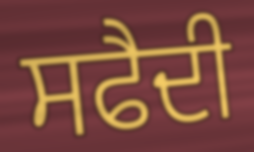
ਸਫੈਦੀ